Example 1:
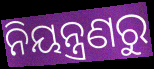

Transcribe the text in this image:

ନିୟନ୍ତ୍ରଣରୁ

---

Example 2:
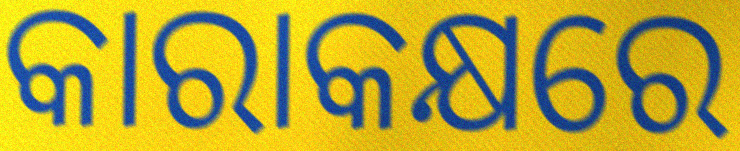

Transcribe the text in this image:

କାରାକକ୍ଷରେ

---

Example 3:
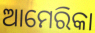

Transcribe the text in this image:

ଆମେରିକା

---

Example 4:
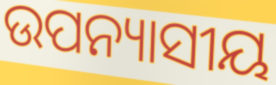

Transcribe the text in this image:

ଉପନ୍ୟାସୀୟ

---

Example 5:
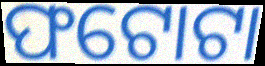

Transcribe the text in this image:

ଫଟୋଟା